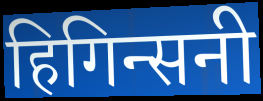
हिगिन्सनी